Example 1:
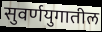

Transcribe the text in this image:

सुवर्णयुगातील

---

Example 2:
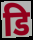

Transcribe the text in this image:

डि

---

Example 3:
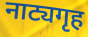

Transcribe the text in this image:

नाट्यगृह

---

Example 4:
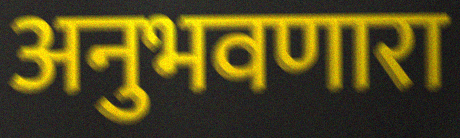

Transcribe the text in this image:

अनुभवणारा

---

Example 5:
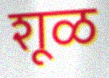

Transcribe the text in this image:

शूळ